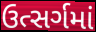
ઉત્સર્ગમાં